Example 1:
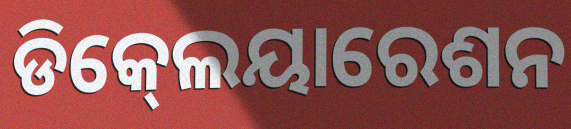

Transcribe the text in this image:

ଡିକ୍‍ଲେୟାରେଶନ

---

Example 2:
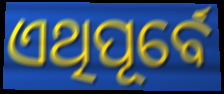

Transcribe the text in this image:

ଏଥିପୂର୍ବେ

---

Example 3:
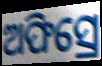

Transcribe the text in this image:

ଅଫିସ୍ରେ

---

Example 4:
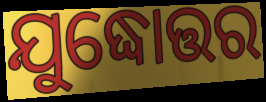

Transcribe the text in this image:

ଯୁଦ୍ଧୋତ୍ତର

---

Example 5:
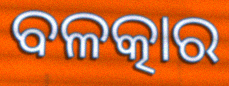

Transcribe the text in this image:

ବଳତ୍କାର